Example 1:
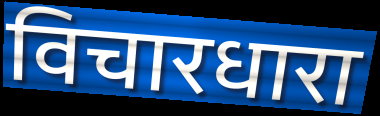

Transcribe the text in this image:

विचारधारा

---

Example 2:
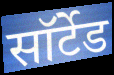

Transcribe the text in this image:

सॉर्टेड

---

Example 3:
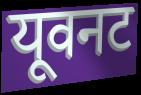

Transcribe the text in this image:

यूवनट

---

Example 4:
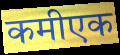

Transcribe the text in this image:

कमीएक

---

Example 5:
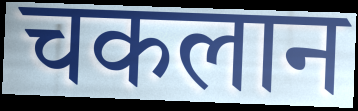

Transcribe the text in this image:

चकलान